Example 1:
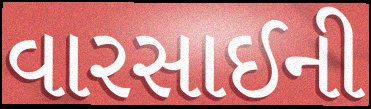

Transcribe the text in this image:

વારસાઈની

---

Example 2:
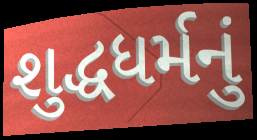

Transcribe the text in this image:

શુદ્ધધર્મનું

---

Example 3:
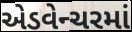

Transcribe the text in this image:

એડવેન્ચરમાં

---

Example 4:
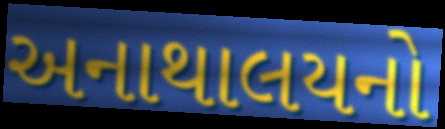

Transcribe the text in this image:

અનાથાલયનો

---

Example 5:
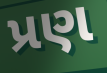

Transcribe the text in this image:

પ્રણ